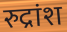
रुद्रांश